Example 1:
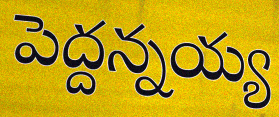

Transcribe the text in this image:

పెద్దన్నయ్య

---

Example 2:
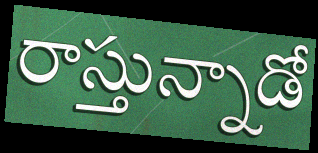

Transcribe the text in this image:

రాస్తున్నాడో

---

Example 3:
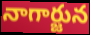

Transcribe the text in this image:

నాగార్జున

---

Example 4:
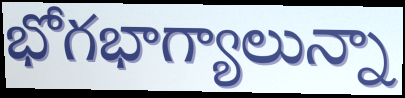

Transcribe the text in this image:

భోగభాగ్యాలున్నా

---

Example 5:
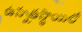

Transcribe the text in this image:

ఉన్నతస్థాయిలో